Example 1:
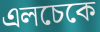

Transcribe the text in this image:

এলচেকে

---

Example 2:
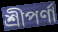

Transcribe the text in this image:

শ্রীপর্ণা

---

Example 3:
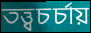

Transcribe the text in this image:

তত্ত্বচর্চায়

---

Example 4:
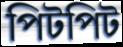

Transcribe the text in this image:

পিটপিট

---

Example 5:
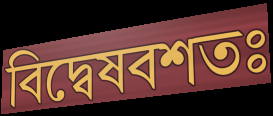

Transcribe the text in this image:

বিদ্বেষবশতঃ